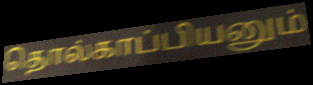
தொல்காப்பியனும்